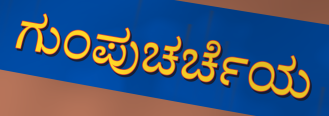
ಗುಂಪುಚರ್ಚೆಯ